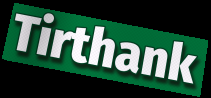
Tirthank